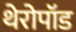
थेरोपॉड